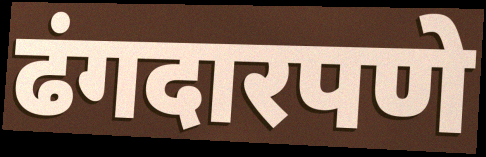
ढंगदारपणे